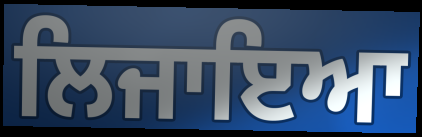
ਲਿਜਾਇਆ